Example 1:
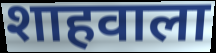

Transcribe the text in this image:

शाहवाला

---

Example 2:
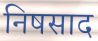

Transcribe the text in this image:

निषसाद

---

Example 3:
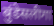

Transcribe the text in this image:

बुंडेसलीगा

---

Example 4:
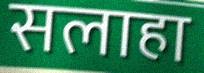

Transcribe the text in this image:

सलाहा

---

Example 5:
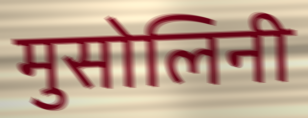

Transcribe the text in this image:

मुसोलिनी